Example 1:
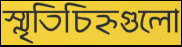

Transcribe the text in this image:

স্মৃতিচিহ্নগুলো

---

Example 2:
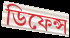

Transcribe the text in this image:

ডিফেন্স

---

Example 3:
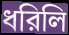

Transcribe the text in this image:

ধরিলি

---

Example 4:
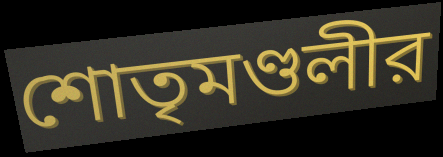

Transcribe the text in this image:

শোতৃমণ্ডলীর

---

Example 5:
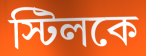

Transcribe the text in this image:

স্টিলকে